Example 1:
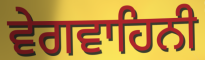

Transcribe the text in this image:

ਵੇਗਵਾਹਿਨੀ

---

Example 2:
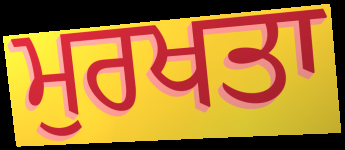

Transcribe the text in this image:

ਮੁਰਖਤਾ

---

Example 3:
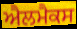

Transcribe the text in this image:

ਐਲਮੈਕਸ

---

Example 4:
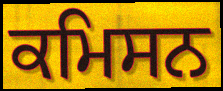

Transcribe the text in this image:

ਕਮਿਸਨ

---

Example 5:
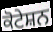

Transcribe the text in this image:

ਕੋਟੇਸ਼ਨ